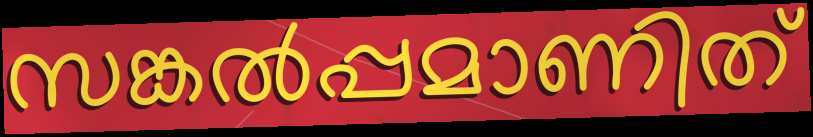
സങ്കൽപ്പമാണിത്